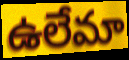
ఉలేమా